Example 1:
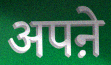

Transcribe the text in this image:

अपऩे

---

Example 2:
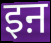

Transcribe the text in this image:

इऩ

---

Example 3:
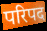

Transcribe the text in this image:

परिपद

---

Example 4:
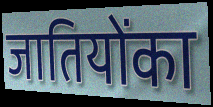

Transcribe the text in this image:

जातियोंका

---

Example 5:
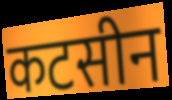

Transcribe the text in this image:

कटसीन